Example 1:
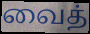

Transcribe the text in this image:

வைத்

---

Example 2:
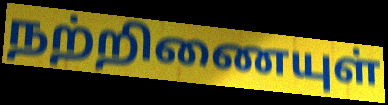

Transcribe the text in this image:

நற்றிணையுள்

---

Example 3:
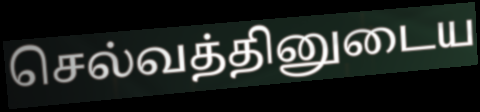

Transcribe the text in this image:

செல்வத்தினுடைய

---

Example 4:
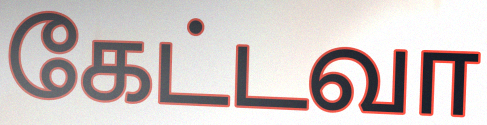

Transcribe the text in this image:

கேட்டவா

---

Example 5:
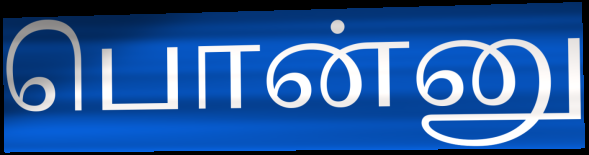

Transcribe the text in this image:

பொன்னு